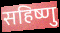
सहिष्णु